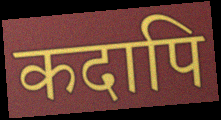
कदापि